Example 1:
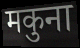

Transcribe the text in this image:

मकुना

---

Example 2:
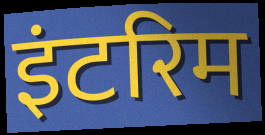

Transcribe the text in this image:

इंटरिम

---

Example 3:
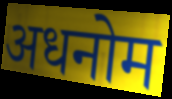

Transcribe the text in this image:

अधनोम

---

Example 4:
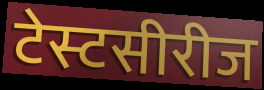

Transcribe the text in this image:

टेस्टसीरीज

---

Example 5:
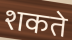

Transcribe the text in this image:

शकते